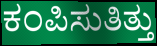
ಕಂಪಿಸುತಿತ್ತು